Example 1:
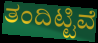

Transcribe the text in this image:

ತಂದಿಟ್ಟಿವೆ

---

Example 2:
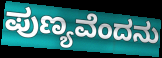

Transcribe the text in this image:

ಪುಣ್ಯವೆಂದನು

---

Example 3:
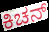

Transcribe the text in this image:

ಕಿಚನ್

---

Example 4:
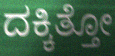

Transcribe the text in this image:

ದಕ್ಕಿತ್ತೋ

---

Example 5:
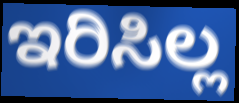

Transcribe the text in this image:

ಇರಿಸಿಲ್ಲ